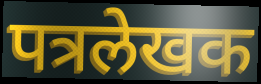
पत्रलेखक